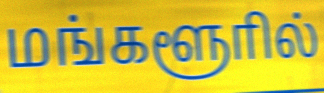
மங்களூரில்